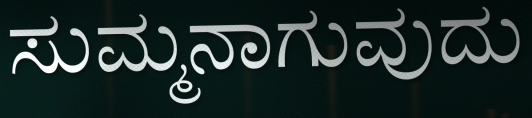
ಸುಮ್ಮನಾಗುವುದು